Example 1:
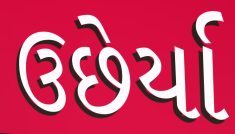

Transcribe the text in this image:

ઉછેર્યા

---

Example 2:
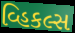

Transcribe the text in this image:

વ્હિકલ્સ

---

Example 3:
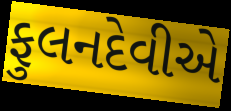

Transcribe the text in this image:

ફુલનદેવીએ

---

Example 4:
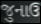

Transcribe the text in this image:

જુનાઉ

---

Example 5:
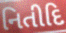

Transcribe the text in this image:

નિતીદિ